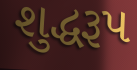
શુદ્ધરૂપ